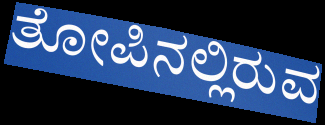
ತೋಪಿನಲ್ಲಿರುವ